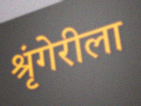
श्रृंगेरीला